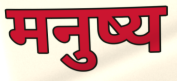
मनुष्य